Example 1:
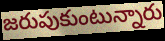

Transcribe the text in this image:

జరుపుకుంటున్నారు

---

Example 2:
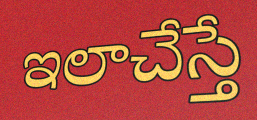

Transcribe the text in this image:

ఇలాచేస్తే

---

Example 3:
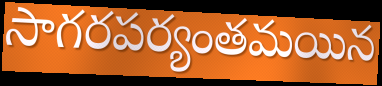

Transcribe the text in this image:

సాగరపర్యంతమయిన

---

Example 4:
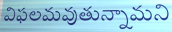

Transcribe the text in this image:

విఫలమవుతున్నామని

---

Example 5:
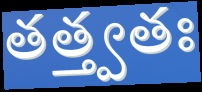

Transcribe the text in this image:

తత్త్వతః